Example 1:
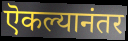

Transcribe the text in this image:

ऎकल्यानंतर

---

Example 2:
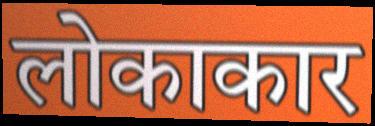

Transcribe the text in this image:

लोकाकार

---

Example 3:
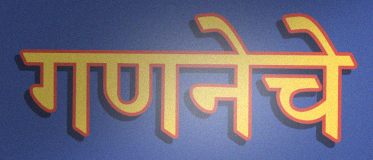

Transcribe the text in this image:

गणनेचे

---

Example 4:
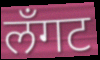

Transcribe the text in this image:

लँगट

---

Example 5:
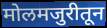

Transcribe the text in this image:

मोलमजुरीतून